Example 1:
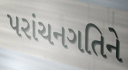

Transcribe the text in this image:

પરાંચનગતિને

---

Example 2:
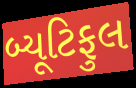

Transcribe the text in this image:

બ્યૂટિફુલ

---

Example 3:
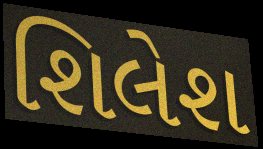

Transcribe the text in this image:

શિલેશ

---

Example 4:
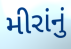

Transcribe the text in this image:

મીરાંનું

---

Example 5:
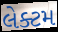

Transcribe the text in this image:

લેક્ટમ